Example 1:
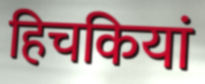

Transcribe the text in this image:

हिचकियां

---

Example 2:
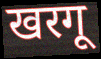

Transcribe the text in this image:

खरगू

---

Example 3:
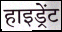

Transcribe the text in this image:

हाइड्रेंट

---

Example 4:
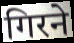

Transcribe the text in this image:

गिरने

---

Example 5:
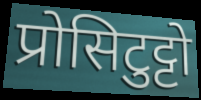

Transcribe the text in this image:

प्रोसिटुट्टो